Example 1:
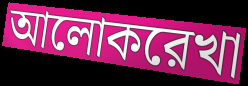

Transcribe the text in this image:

আলোকরেখা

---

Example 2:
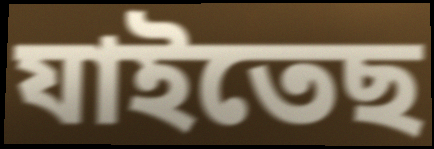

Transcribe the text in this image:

যাইতেছ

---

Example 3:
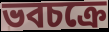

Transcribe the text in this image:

ভবচক্রে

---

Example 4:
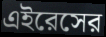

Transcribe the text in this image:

এইরেসের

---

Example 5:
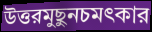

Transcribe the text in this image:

উত্তরমুছুনচমৎকার